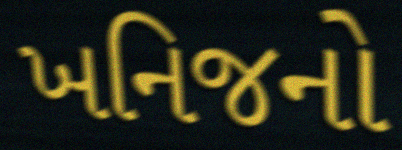
ખનિજનો